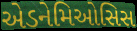
એડનેમિઓસિસ